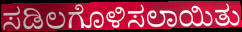
ಸಡಿಲಗೊಳಿಸಲಾಯಿತು